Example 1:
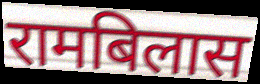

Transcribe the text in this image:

रामबिलास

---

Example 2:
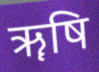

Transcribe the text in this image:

ॠषि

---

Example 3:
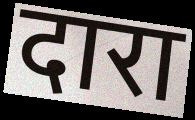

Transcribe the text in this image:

दारा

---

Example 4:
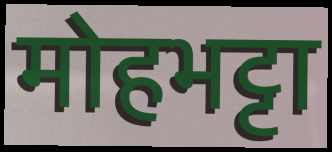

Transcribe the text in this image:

मोहभट्टा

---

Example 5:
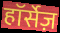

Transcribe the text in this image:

हॉर्सेज़